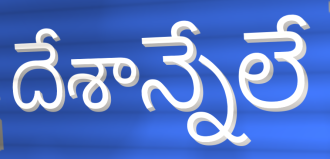
దేశాన్నేలే